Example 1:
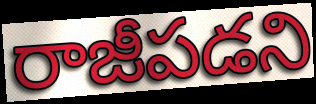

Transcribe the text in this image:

రాజీపడని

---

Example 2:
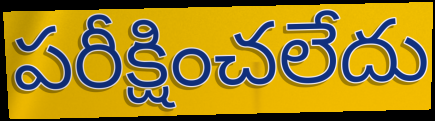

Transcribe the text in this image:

పరీక్షించలేదు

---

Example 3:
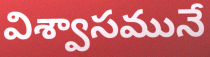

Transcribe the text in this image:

విశ్వాసమునే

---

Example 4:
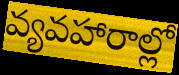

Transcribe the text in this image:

వ్యవహారాల్లో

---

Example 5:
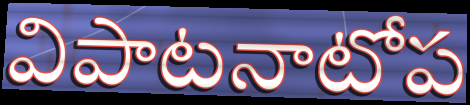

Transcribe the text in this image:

విపాటనాటోప